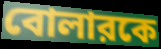
বোলারকে